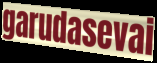
garudasevai